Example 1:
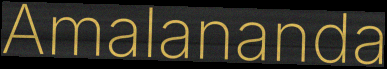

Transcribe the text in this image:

Amalananda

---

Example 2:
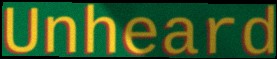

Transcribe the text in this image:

Unheard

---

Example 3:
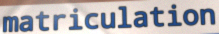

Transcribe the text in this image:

matriculation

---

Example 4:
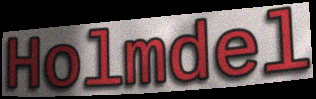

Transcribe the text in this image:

Holmdel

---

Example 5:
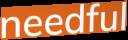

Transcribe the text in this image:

needful